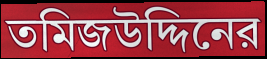
তমিজউদ্দিনের